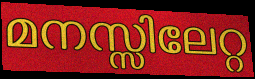
മനസ്സിലേറ്റ